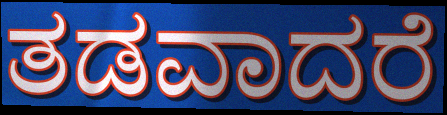
ತಡವಾದರೆ